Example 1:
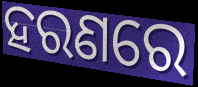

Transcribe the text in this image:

ହରଣରେ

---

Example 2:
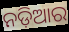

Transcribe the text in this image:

ନଡ଼ିଆର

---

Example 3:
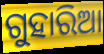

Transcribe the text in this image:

ଗୁହାରିଆ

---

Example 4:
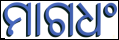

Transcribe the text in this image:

ମାଗଧଂ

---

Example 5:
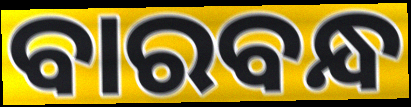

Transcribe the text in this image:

ବାରବନ୍ଧ